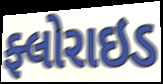
ફ્લોરાઇડ